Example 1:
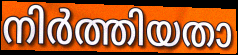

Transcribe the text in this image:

നിർത്തിയതാ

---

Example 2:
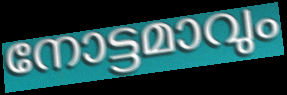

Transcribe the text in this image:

നോട്ടമാവും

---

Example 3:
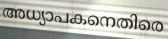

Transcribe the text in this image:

അധ്യാപകനെതിരെ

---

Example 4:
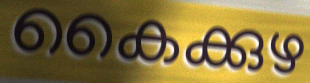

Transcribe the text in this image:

കൈക്കുഴ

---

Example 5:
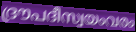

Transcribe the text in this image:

ദ്രൗപദീസ്വയംവരം